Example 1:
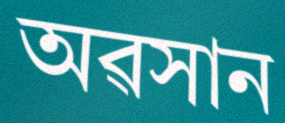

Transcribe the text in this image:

অৱসান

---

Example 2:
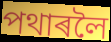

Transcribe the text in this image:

পথাৰলৈ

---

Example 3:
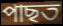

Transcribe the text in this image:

পাছত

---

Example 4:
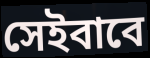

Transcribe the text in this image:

সেইবাবে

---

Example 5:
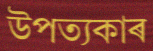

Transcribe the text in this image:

উপত্যকাৰ